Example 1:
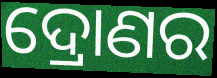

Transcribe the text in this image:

ଦ୍ରୋଣର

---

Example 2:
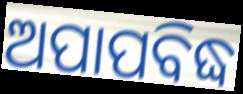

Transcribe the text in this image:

ଅପାପବିଦ୍ଧ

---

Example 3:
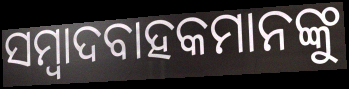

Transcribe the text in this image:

ସମ୍ବାଦବାହକମାନଙ୍କୁ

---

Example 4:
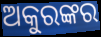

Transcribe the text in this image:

ଅକୁରଙ୍କର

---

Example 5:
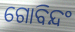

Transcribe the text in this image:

ଗୋବିନ୍ଦଂ